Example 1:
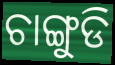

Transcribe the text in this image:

ଚାଙ୍ଗୁଡି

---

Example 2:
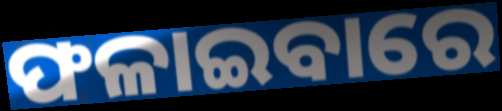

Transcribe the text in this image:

ଫଳାଇବାରେ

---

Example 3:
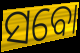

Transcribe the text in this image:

ସବୋ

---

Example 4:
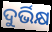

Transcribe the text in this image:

ଦୁର୍ଭିକ୍ଷ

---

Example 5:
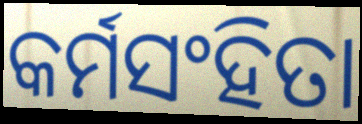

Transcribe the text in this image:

କର୍ମସଂହିତା